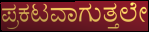
ಪ್ರಕಟವಾಗುತ್ತಲೇ